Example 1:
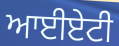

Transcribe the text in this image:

ਆਈਏਟੀ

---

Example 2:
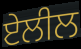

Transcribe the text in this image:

ਏਲੀਲ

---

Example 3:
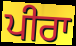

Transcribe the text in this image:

ਪੀਰਾ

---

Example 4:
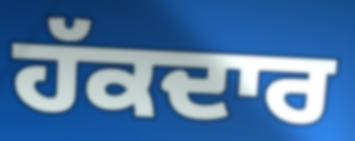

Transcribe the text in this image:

ਹੱਕਦਾਰ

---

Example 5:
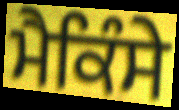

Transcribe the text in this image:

ਮੈਕਿੰਸੇ